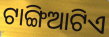
ଟାଙ୍ଗିଆଟିଏ